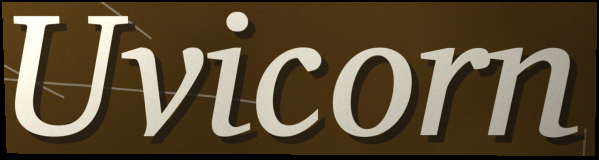
Uvicorn